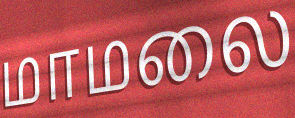
மாமலை